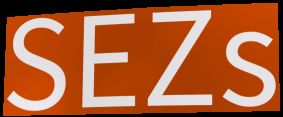
SEZs